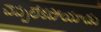
చెప్పలేకపోయాడు